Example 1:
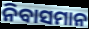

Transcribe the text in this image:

ନିବାସମାନ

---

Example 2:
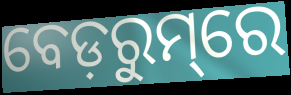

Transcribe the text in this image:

ବେଡ଼ରୁମ୍‌ରେ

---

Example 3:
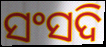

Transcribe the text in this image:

ସଂସଦି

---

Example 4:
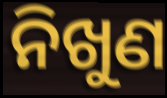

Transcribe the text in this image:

ନିଖୁଣ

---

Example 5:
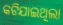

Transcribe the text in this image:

କଟିଯାଇଥିଲା